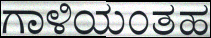
ಗಾಳಿಯಂತಹ